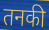
तनकी